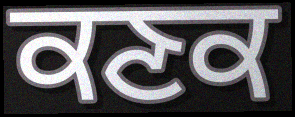
ਕਣਕ